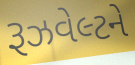
રૂઝવેલ્ટને